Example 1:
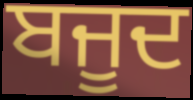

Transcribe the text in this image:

ਬਜੂਦ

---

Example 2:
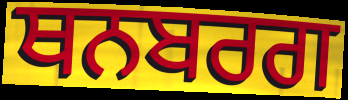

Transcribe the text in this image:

ਥਨਬਰਗ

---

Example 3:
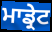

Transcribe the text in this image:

ਮਾਡ੍ਰੇਟ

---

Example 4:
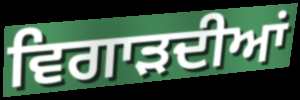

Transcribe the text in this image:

ਵਿਗਾੜਦੀਆਂ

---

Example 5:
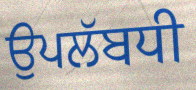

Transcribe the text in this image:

ਉਪਲੱਬਧੀ